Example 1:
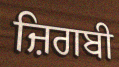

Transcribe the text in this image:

ਜ਼ਿਗਬੀ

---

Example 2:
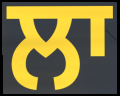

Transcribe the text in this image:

ਲਾ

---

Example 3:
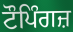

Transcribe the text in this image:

ਟੌਪਿੰਗਜ਼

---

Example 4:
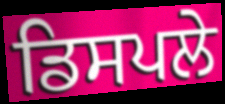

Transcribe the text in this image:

ਡਿਸਪਲੇ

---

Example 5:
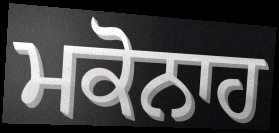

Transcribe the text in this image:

ਮਕੋਨਾਹ